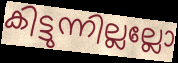
കിട്ടുന്നില്ലല്ലോ